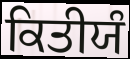
ਕਿਤੀਯੰ